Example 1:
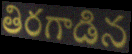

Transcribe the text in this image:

తిరగాడిన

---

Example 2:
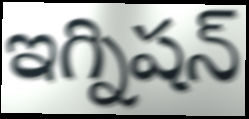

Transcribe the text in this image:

ఇగ్నిషన్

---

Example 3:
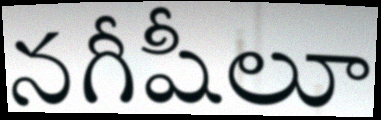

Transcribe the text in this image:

నగీషీలూ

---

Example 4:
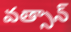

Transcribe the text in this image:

వత్సాన్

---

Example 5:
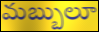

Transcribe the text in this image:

మబ్బులూ